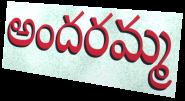
అందరమ్మ